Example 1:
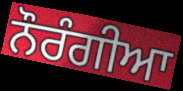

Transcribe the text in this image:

ਨੌਰੰਗੀਆ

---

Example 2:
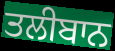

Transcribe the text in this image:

ਤਲੀਬਾਨ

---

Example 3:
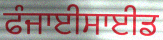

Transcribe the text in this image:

ਫੰਜਾਈਸਾਈਡ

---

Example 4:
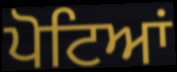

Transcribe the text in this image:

ਪੋਟਿਆਂ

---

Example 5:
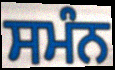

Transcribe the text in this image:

ਸਮੰਨ